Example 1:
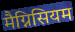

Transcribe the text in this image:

मैग्निसियम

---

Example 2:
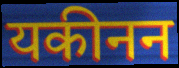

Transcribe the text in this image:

यकीनन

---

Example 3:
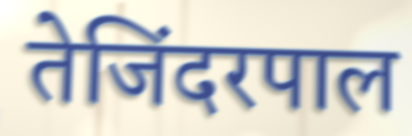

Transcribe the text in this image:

तेजिंदरपाल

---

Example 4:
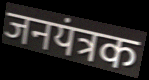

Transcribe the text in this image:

जनयंत्रक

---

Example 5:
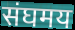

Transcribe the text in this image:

संघमय